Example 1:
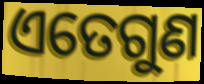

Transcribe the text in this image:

ଏତେଗୁଣ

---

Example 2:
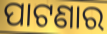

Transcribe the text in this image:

ପାଟଣାର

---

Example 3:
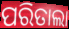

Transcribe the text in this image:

ପରିତାଲା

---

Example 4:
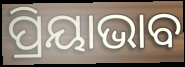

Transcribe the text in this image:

ପ୍ରିୟାଭାବ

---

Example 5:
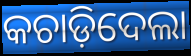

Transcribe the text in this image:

କଚାଡ଼ିଦେଲା